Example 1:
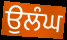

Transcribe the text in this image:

ਉਲੰਘ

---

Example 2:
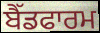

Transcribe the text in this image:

ਬੈੱਡਫਾਰਮ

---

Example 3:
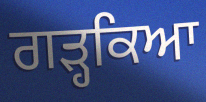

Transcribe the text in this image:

ਗੜ੍ਹਕਿਆ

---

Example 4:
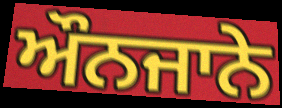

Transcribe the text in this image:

ਔਨਜਾਨੇ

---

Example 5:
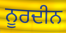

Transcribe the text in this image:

ਨੂਰਦੀਨ